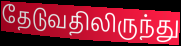
தேடுவதிலிருந்து